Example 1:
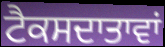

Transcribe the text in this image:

ਟੈਕਸਦਾਤਾਵਾਂ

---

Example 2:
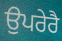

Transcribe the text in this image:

ਉਪਰੇਰੈ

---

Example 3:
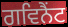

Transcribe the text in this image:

ਗਵਿਨੈਂਟ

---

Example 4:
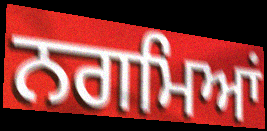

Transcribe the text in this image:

ਨਗਮਿਆਂ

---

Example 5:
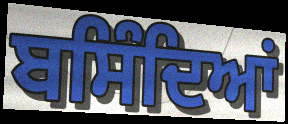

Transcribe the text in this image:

ਬਸਿੰਦਿਆਂ